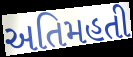
અતિમહતી